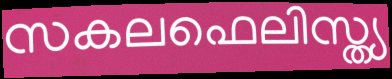
സകലഫെലിസ്ത്യ